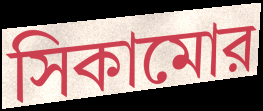
সিকামোর